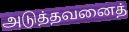
அடுத்தவனைத்